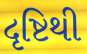
દૃષ્ટિથી